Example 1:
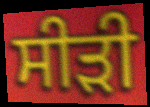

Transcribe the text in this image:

ਸੀੜੀ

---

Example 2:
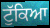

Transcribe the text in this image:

ਟੁੱਕਿਆ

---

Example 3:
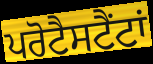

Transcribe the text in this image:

ਪਰੋਟੈਸਟੈਂਟਾਂ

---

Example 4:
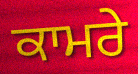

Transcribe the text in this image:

ਕਾਮਰੇ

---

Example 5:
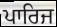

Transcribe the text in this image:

ਪਾਰਿਜ